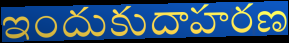
ఇందుకుదాహరణ